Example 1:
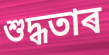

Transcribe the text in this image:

শুদ্ধতাৰ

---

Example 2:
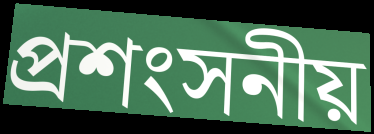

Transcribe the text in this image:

প্ৰশংসনীয়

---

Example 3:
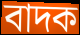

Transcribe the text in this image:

বাদক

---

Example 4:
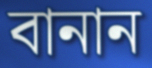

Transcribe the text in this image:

বানান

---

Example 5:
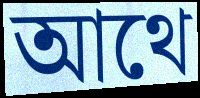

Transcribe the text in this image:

আথে